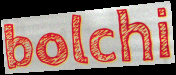
bolchi